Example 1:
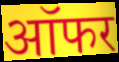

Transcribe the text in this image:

ऑफर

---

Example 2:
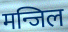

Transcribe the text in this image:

मन्जिल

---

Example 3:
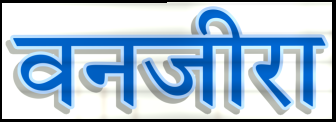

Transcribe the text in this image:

वनजीरा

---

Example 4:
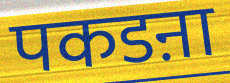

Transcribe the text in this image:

पकडऩा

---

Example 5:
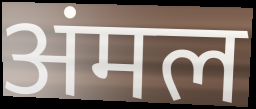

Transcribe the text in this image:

अंमल